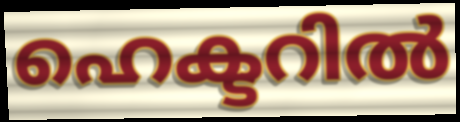
ഹെക്ടറിൽ